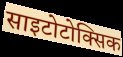
साइटोटोक्सिक